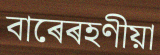
বাৰেৰহণীয়া